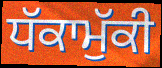
ਧੱਕਾਮੁੱਕੀ